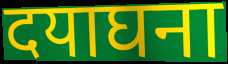
दयाघना